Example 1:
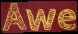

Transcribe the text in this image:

Awe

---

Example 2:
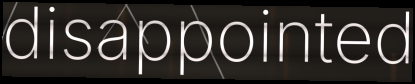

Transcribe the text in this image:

disappointed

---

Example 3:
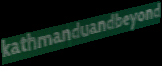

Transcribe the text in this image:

kathmanduandbeyond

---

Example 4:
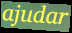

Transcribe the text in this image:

ajudar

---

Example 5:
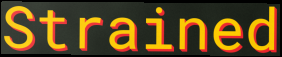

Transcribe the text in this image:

Strained